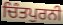
ਚਿੰਤਪੁਰਨੀ